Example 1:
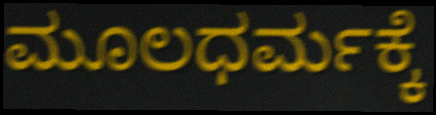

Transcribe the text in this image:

ಮೂಲಧರ್ಮಕ್ಕೆ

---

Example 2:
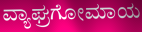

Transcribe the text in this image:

ವ್ಯಾಘ್ರಗೋಮಾಯ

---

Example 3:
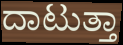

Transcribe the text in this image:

ದಾಟುತ್ತಾ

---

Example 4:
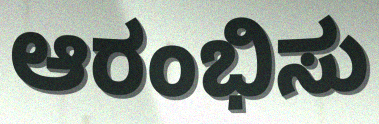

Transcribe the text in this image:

ಆರಂಭಿಸು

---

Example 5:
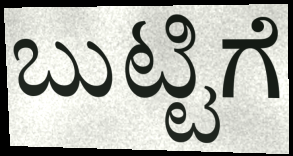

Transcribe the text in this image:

ಬುಟ್ಟಿಗೆ